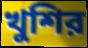
খুশির